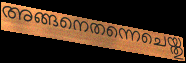
അങ്ങനെതന്നെചെയ്തു